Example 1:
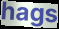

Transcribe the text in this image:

hags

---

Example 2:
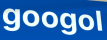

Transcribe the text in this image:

googol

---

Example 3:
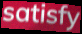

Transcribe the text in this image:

satisfy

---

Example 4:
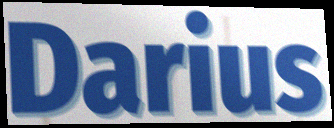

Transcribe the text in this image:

Darius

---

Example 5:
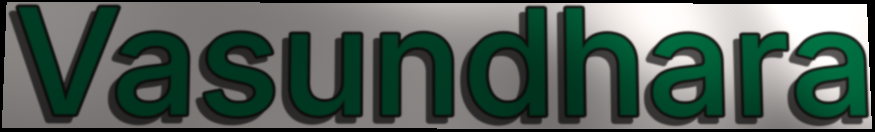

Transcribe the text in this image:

Vasundhara